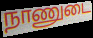
நாணுடை